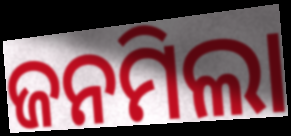
ଜନମିଲା